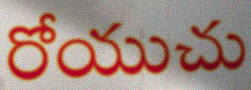
రోయుచు